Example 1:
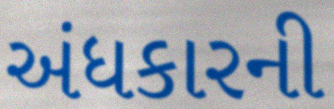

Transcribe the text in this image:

અંધકારની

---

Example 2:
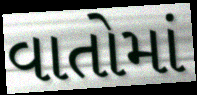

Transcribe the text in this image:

વાતોમાં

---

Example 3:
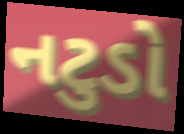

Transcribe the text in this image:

નટુડો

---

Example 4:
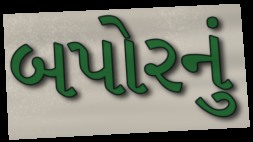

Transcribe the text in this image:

બપોરનું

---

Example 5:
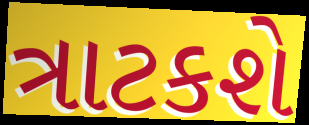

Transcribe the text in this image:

ત્રાટકશે